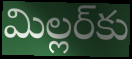
మిల్లర్‌కు